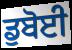
ਡੁਬੋਈ